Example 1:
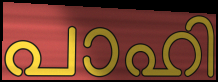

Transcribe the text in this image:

പാഹി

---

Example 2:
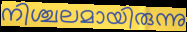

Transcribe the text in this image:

നിശ്ചലമായിരുന്നു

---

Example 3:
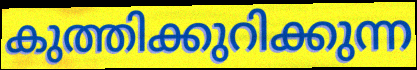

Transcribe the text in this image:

കുത്തിക്കുറിക്കുന്ന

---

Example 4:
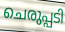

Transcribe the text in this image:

ചെരുപ്പടി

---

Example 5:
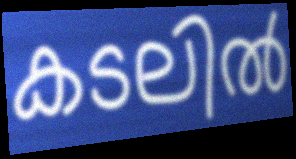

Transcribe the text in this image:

കടലിൽ